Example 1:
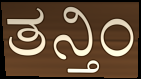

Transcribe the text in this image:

ತನ್ತಿಂ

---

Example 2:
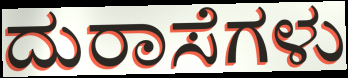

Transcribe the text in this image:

ದುರಾಸೆಗಳು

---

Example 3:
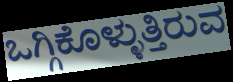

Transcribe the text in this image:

ಒಗ್ಗಿಕೊಳ್ಳುತ್ತಿರುವ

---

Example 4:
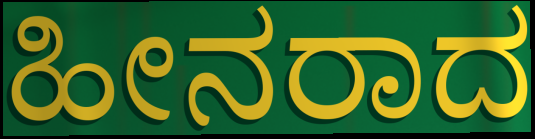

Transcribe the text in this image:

ಹೀನರಾದ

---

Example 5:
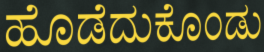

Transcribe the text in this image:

ಹೊಡೆದುಕೊಂಡು